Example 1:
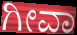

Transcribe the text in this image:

ಗೀವಾ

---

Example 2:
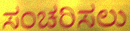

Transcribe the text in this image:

ಸಂಚರಿಸಲು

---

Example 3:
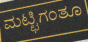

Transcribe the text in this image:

ಮಟ್ಟಿಗಂತೂ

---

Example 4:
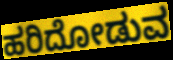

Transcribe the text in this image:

ಹರಿದೋಡುವ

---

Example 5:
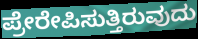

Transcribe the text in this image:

ಪ್ರೇರೇಪಿಸುತ್ತಿರುವುದು